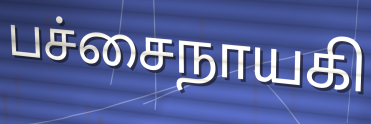
பச்சைநாயகி